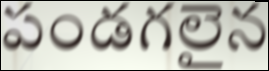
పండగలైన